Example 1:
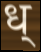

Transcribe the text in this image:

ध्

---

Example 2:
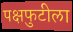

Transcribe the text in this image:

पक्षफुटीला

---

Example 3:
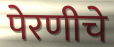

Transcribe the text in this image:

पेरणीचे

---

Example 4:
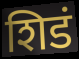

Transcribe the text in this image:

शिडं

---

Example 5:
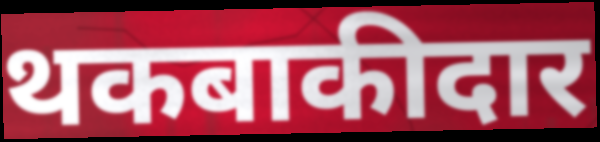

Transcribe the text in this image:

थकबाकीदार